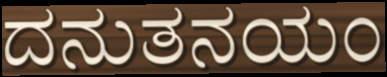
ದನುತನಯಂ